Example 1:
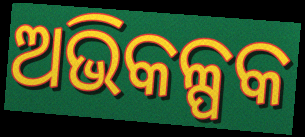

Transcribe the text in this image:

ଅଭିକଳ୍ପକ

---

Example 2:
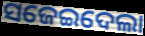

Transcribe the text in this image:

ସଜେଇଦେଲା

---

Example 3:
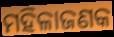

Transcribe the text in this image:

ମହିଳାଜଣକ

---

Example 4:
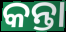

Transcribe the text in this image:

କନ୍ତା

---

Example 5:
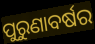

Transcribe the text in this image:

ପୁରୁଣାବର୍ଷର